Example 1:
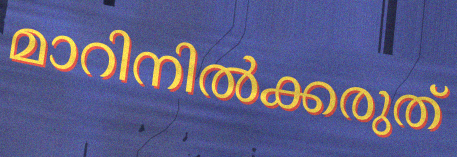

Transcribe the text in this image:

മാറിനിൽക്കരുത്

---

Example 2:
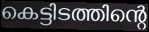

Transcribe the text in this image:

കെട്ടിടത്തിന്റെ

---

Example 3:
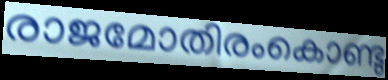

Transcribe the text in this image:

രാജമോതിരംകൊണ്ടു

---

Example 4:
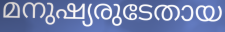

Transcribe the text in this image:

മനുഷ്യരുടേതായ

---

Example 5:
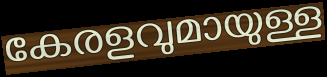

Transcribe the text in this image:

കേരളവുമായുള്ള